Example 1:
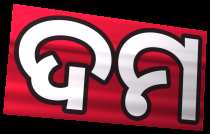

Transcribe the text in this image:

ଦମ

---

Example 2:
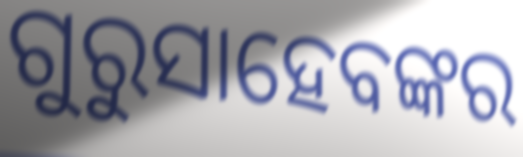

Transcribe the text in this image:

ଗୁରୁସାହେବଙ୍କର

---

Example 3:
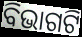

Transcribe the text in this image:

ବିଭାଗଟି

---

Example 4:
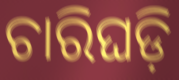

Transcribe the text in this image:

ଚାରିଘଡ଼ି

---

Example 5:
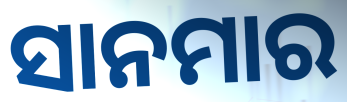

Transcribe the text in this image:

ସାନମାର